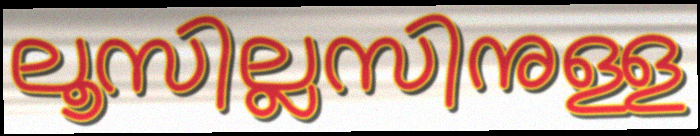
ലൂസില്ലസിനുള്ള